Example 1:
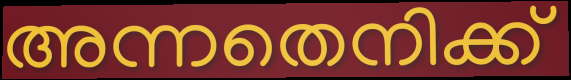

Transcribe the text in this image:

അന്നതെനിക്ക്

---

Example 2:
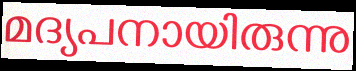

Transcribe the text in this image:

മദ്യപനായിരുന്നു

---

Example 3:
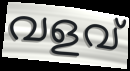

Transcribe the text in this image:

വളവ്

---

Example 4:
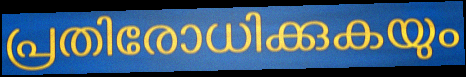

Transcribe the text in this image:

പ്രതിരോധിക്കുകയും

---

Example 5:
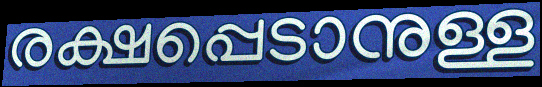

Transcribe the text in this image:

രക്ഷപ്പെടാനുള്ള